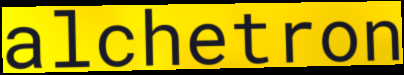
alchetron